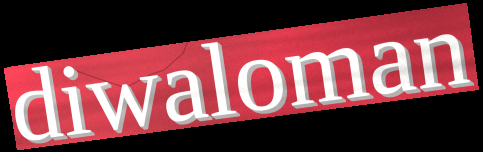
diwaloman